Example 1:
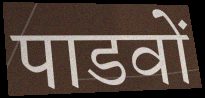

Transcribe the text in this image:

पाडवों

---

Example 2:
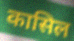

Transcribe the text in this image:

कासिल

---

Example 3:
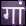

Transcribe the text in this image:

गां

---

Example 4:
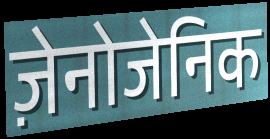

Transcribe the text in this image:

ज़ेनोजेनिक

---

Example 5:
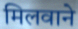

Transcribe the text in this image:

मिलवाने